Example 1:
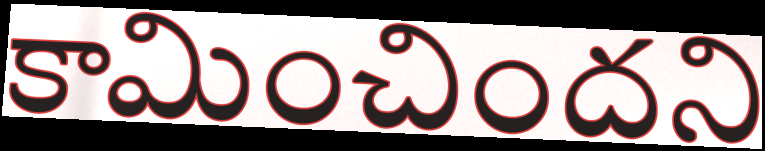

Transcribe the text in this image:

కామించిందని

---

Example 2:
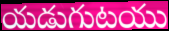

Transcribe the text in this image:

యడుగుటయు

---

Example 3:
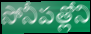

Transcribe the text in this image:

సోనీపత్లోని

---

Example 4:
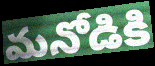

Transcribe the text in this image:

మనోడికి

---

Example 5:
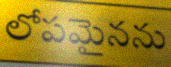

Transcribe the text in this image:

లోపమైనను